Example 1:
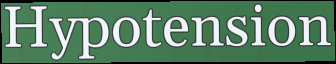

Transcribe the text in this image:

Hypotension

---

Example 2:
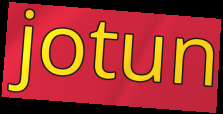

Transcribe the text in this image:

jotun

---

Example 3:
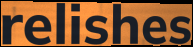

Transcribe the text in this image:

relishes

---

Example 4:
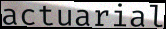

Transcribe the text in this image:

actuarial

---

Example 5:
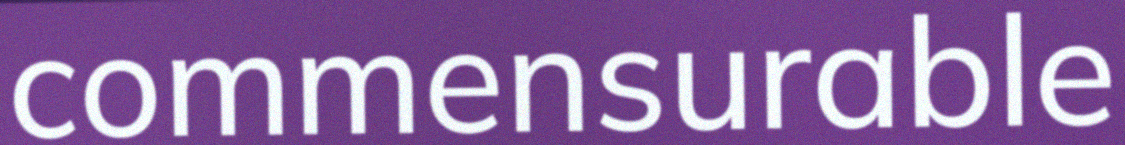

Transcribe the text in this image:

commensurable